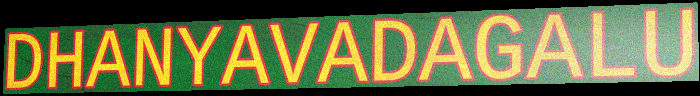
DHANYAVADAGALU